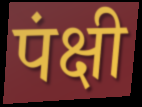
पंक्षी